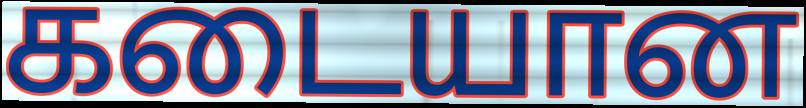
கடையான